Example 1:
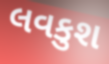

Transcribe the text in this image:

લવકુશ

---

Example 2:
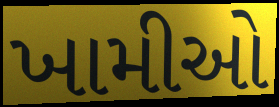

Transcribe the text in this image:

ખામીઓ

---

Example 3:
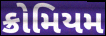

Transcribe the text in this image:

ક્રોમિયમ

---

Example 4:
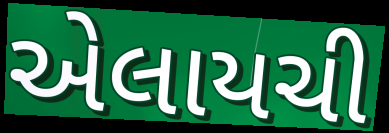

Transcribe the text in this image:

એલાયચી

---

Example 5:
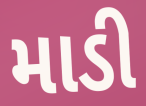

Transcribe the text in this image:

માડી